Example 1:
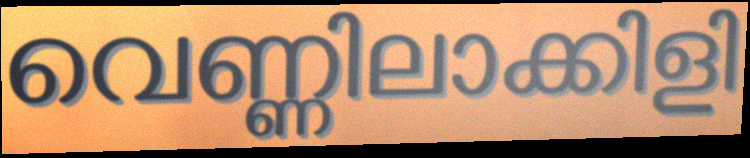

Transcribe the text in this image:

വെണ്ണിലാക്കിളി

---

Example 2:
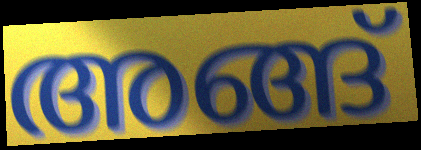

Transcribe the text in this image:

അങ്ങ്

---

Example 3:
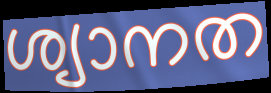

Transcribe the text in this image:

ശ്യാനത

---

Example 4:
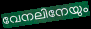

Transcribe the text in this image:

വേനലിനേയും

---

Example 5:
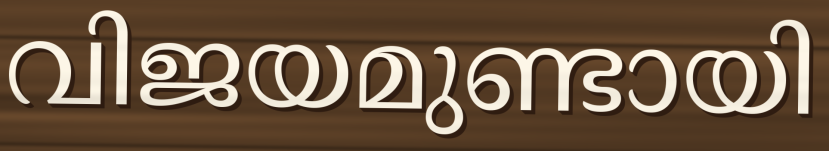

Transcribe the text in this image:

വിജയമുണ്ടായി